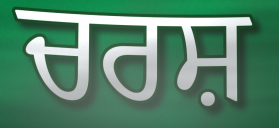
ਚਰਸ਼